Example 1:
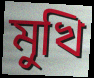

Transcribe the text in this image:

মুখি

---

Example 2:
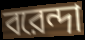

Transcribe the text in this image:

বরেন্দা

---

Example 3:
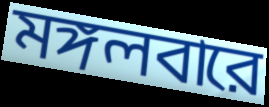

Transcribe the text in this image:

মঙ্গলবারে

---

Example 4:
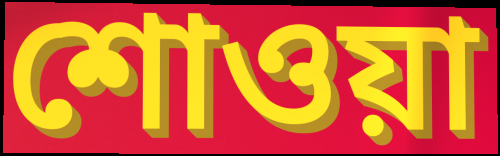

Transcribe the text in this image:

শোওয়া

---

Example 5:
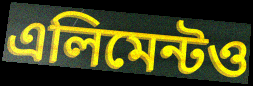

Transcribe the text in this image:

এলিমেন্টও